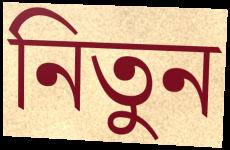
নিতুন